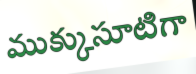
ముక్కుసూటిగా